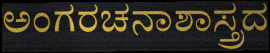
ಅಂಗರಚನಾಶಾಸ್ತ್ರದ